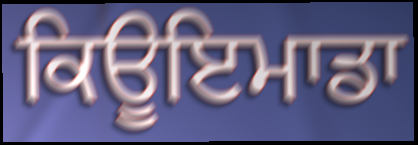
ਕਿਊਇਮਾਡਾ